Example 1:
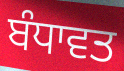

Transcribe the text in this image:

ਬੰਧਾਵਤ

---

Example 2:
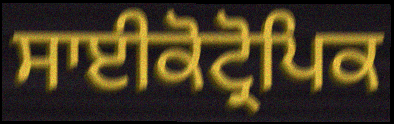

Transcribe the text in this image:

ਸਾਈਕੋਟ੍ਰੋਪਿਕ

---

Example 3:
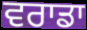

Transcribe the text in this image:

ਵਰਾਡਾ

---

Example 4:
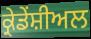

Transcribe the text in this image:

ਕ੍ਰੇਡੇਂਸ਼ੀਅਲ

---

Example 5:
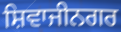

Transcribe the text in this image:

ਸ਼ਿਵਾਜੀਨਗਰ